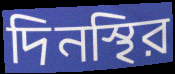
দিনস্থির